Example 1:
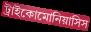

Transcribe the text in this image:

ট্রাইকোমোনিয়াসিস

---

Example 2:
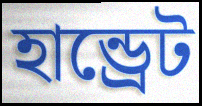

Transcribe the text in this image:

হান্ড্রেট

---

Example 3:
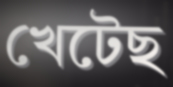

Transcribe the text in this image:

খেটেছ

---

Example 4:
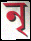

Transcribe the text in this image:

নৃ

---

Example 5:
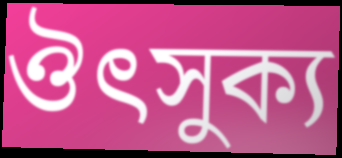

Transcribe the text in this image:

ঔৎসুক্য